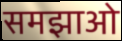
समझाओ